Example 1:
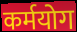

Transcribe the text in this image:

कर्मयोग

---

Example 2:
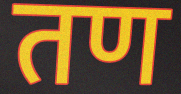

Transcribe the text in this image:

तण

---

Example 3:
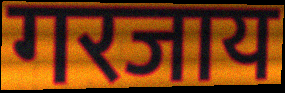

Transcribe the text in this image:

गरजाय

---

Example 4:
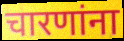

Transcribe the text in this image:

चारणांना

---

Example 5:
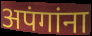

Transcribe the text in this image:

अपंगांना